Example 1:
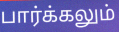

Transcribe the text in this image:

பார்க்கலும்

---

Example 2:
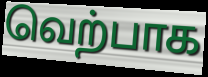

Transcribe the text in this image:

வெற்பாக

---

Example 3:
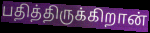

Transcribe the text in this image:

பதித்திருக்கிறான்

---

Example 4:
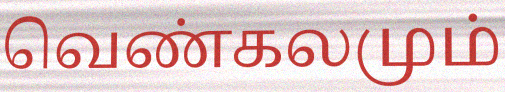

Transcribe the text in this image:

வெண்கலமும்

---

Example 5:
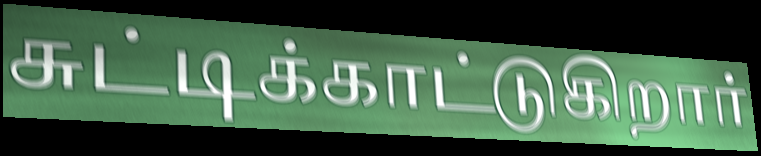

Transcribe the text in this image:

சுட்டிக்காட்டுகிறார்